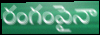
రంగంపైనా